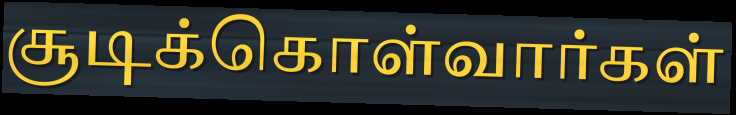
சூடிக்கொள்வார்கள்